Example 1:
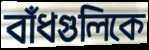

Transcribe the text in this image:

বাঁধগুলিকে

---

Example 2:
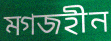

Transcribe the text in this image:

মগজহীন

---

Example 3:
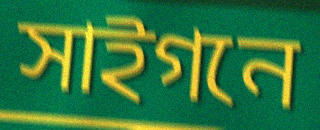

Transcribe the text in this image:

সাইগনে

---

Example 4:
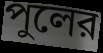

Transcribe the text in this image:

পুলের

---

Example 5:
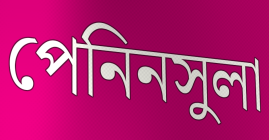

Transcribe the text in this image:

পেনিনসুলা